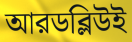
আরডব্লিউই